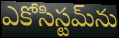
ఎకోసిస్టమ్‌ను